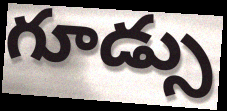
గూడ్సు